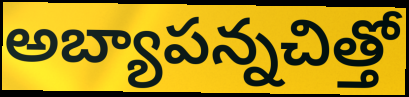
అబ్యాపన్నచిత్తో